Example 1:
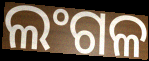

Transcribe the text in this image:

ଲଂଗଳ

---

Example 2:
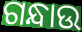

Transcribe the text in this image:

ଗନ୍ଧାଉ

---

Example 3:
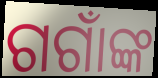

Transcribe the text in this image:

ଗଗାଁଙ୍କ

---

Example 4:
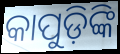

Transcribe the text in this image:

କାପୁଡ଼ିଙ୍କି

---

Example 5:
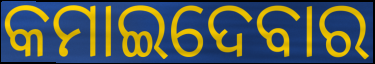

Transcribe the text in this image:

କମାଇଦେବାର